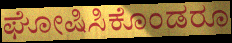
ಘೋಷಿಸಿಕೊಂಡರೂ